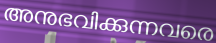
അനുഭവിക്കുന്നവരെ